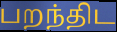
பறந்திட